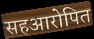
सहआरोपित